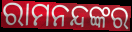
ରାମନନ୍ଦଙ୍କର